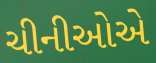
ચીનીઓએ